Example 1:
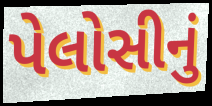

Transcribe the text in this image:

પેલોસીનું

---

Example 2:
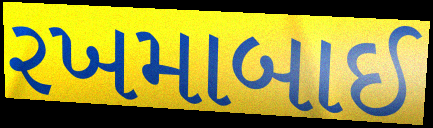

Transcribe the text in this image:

રખમાબાઈ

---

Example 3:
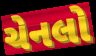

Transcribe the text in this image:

ચેનલો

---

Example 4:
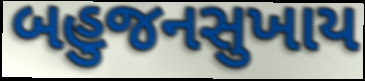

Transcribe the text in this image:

બહુજનસુખાય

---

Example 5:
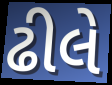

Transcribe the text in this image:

ઢીલે